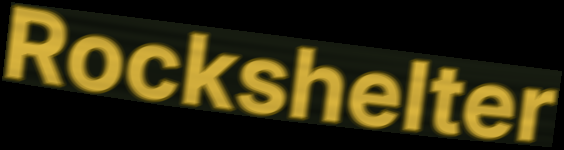
Rockshelter